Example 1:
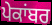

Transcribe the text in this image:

ਪੇਕਾਂਬਰ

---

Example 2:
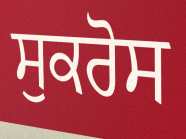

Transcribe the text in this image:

ਸੁਕਰੋਸ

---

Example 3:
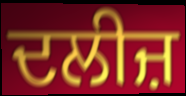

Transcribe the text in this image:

ਦਲੀਜ਼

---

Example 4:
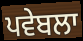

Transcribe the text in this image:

ਪਵੇਬਲਾ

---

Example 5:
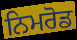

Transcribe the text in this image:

ਨਿਮਰੋਡ